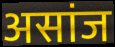
असांज